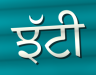
ਝੱਟੀ